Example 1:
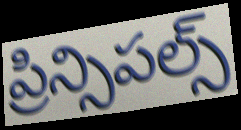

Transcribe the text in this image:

ప్రిన్సిపల్స్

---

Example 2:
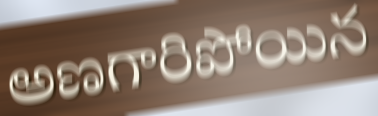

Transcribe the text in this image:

అణగారిపోయిన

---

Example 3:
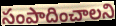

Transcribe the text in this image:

సంపాదించాలని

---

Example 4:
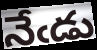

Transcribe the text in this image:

నేఁడు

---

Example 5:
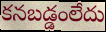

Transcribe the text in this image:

కనబడ్డంలేదు